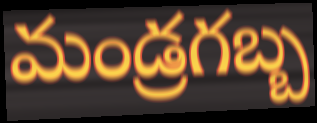
మండ్రగబ్బ